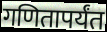
गणितापर्यंत